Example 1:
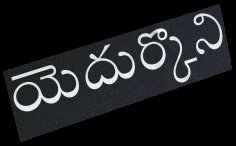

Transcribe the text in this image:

యెదుర్కొని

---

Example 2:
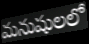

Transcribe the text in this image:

మనుషులలో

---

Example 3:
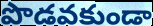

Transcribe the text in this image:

పొడవకుండా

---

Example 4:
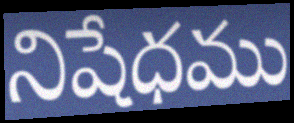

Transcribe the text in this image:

నిషేధము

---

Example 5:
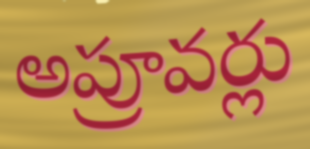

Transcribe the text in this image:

అప్రూవర్లు